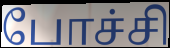
போச்சி